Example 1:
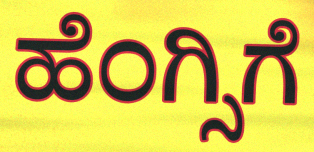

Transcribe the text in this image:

ಹೆಂಗ್ಸಿಗೆ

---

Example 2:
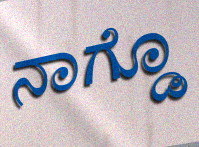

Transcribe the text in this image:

ನಾಗ್ಡೊ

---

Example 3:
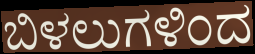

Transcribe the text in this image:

ಬಿಳಲುಗಳಿಂದ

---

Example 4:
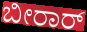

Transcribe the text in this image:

ಬೀರಾರ್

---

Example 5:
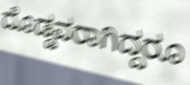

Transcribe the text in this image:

ದೊಡ್ಡವರಾಗಿದ್ದರೂ